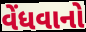
વેંધવાનો